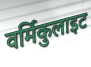
वर्मिकुलाइट